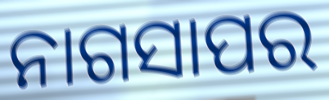
ନାଗସାପର